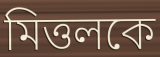
মিত্তলকে